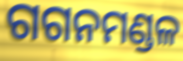
ଗଗନମଣ୍ଡଳ